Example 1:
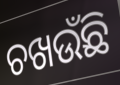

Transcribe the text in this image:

ଚଖଉଁଛି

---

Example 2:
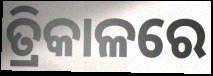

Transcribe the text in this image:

ତ୍ରିକାଳରେ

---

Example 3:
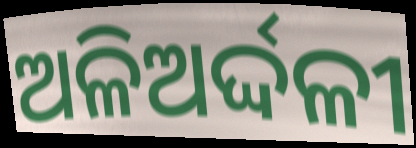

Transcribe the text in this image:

ଅଳିଅର୍ଦ୍ଦଳୀ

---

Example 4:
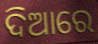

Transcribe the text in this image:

ଦିଆରେ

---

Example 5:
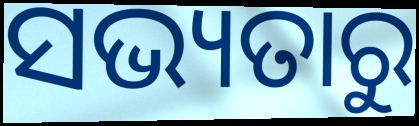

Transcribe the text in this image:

ସଭ୍ୟତାରୁ